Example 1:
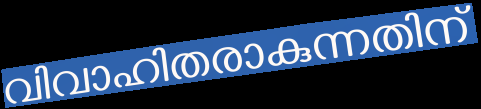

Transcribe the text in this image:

വിവാഹിതരാകുന്നതിന്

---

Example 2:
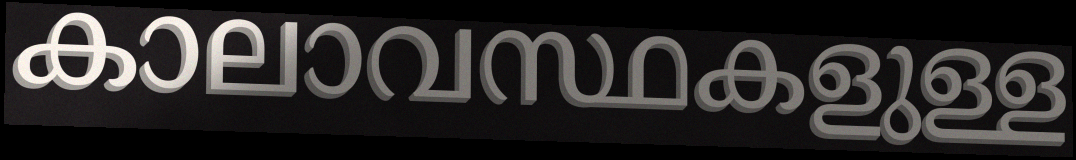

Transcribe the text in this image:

കാലാവസ്ഥകളുള്ള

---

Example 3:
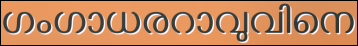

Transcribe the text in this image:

ഗംഗാധരറാവുവിനെ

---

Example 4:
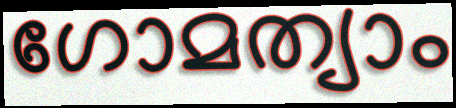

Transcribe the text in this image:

ഗോമത്യാം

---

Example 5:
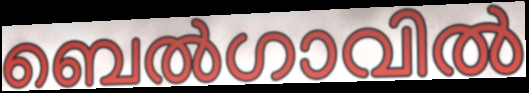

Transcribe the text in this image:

ബെൽഗാവിൽ